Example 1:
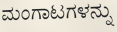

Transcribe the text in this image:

ಮಂಗಾಟಗಳನ್ನು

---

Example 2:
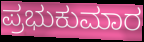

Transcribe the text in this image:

ಪ್ರಭುಕುಮಾರ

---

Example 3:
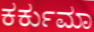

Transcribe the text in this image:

ಕರ್ಕುಮಾ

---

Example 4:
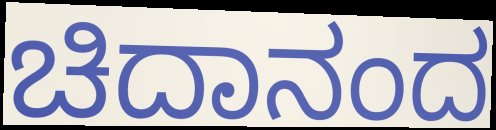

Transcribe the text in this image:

ಚಿದಾನಂದ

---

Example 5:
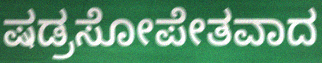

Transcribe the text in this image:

ಷಡ್ರಸೋಪೇತವಾದ